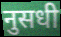
नुसधी